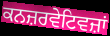
ਕਨਜ਼ਰਵੇਟਿਵਜ਼ਾਂ